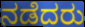
ನಡೆದರು